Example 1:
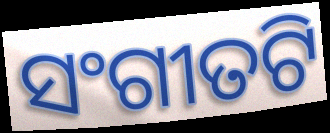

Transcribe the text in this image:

ସଂଗୀତଟି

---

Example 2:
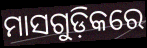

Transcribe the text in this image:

ମାସଗୁଡ଼ିକରେ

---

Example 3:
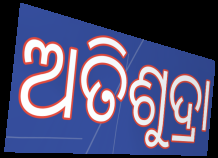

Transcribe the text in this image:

ଅତିଶୁଦ୍ରା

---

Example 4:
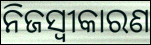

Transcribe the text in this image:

ନିଜସ୍ବୀକାରଣ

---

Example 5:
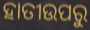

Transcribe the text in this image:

ହାତୀଉପରୁ